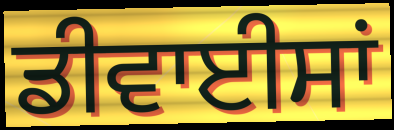
ਡੀਵਾਈਸਾਂ